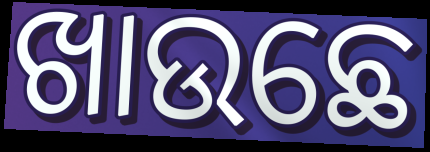
ଖାଉଛେ